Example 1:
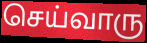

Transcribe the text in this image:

செய்வாரு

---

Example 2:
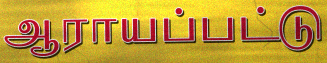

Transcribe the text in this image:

ஆராயப்பட்டு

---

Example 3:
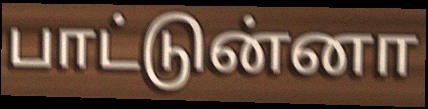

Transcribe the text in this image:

பாட்டுன்னா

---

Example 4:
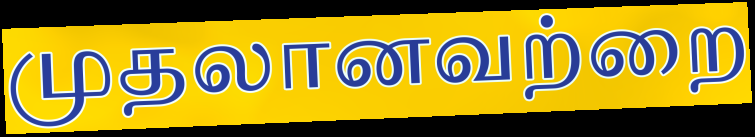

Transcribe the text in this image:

முதலானவற்றை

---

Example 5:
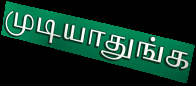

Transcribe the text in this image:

முடியாதுங்க